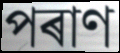
পৰাণ